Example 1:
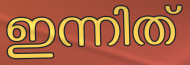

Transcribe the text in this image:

ഇന്നിത്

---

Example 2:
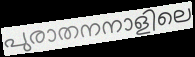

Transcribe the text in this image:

പുരാതനനാളിലെ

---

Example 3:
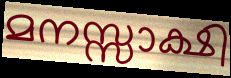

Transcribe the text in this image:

മനസ്സാക്ഷി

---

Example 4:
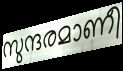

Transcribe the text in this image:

സുന്ദരമാണീ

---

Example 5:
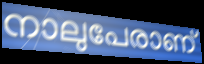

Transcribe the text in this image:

നാലുപേരാണ്